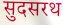
सुदसरथ